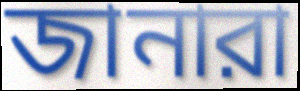
জানারা